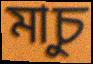
মাচু